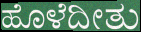
ಹೊಳೆದೀತು